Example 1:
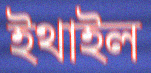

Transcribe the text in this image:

ইথাইল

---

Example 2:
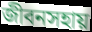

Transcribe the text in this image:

জীবনসহায়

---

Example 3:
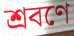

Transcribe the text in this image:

শ্রবণে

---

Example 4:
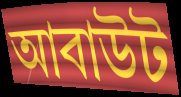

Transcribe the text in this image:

আবাউট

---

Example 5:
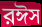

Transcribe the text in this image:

রঈস